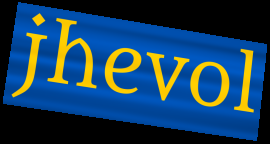
jhevol